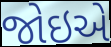
જોઇએ